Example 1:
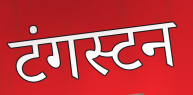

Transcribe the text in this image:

टंगस्टन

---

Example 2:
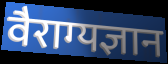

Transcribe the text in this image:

वैराग्यज्ञान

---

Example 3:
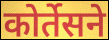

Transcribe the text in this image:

कोर्तेसने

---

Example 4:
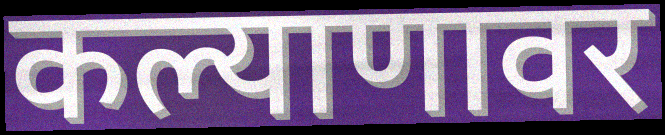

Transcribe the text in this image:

कल्याणावर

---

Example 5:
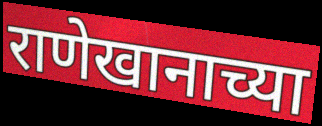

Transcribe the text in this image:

राणेखानाच्या